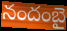
నందంబై